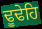
ਢੂਢੇਹਿ